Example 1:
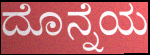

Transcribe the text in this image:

ದೊನ್ನೆಯ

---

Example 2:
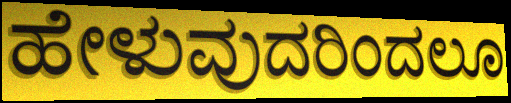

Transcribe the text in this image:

ಹೇಳುವುದರಿಂದಲೂ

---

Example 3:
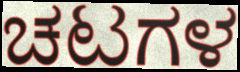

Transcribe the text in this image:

ಚಟಗಳ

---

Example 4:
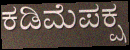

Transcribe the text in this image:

ಕಡಿಮೆಪಕ್ಷ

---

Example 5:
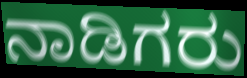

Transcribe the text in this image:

ನಾಡಿಗರು